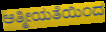
ಆತ್ಮೀಯತೆಯಿಂದ